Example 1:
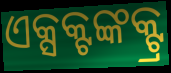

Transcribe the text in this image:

ଏକ୍ସକ୍ଟଙ୍କକ୍ଟ୍ର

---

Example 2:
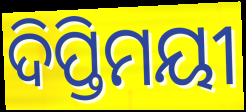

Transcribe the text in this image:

ଦିପ୍ତିମୟୀ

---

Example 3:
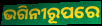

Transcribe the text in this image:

ଭଗିନୀରୂପରେ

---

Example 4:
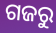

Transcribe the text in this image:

ଗଜରୁ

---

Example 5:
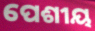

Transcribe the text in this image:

ପେଶୀୟ